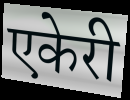
एकेरी